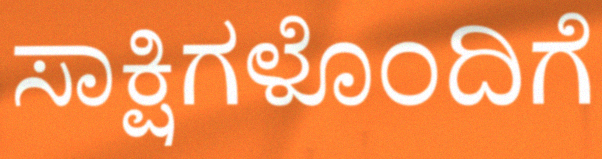
ಸಾಕ್ಷಿಗಳೊಂದಿಗೆ